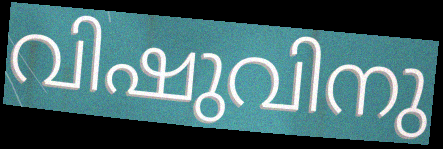
വിഷുവിനു